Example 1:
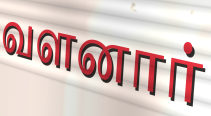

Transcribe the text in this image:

வளனார்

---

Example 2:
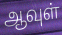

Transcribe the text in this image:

ஆவுள்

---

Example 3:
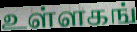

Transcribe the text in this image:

உள்ளகங்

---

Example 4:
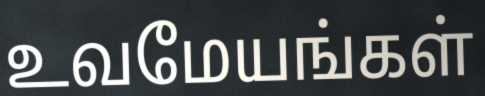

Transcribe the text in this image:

உவமேயங்கள்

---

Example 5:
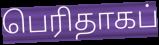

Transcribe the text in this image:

பெரிதாகப்